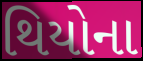
થિયોના